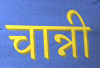
चान्नी